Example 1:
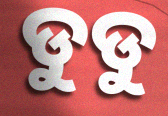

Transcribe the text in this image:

ଡୁଡୁ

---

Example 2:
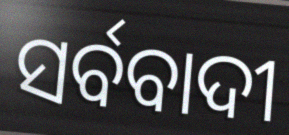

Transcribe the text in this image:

ସର୍ବବାଦୀ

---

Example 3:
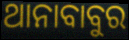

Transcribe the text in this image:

ଥାନାବାବୁର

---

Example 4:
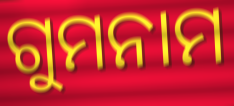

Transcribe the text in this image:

ଗୁମନାମ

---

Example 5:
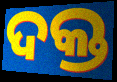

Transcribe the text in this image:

ଦକ୍ତ